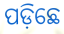
ପଡ଼ିଛେ